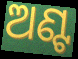
ଅଣ୍ଟ